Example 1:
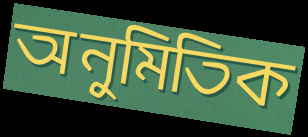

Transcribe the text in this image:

অনুমিতিক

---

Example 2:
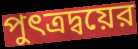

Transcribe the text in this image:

পুৎত্রদ্বয়ের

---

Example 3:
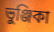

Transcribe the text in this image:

ভুঞ্জিকা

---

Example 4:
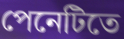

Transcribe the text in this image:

পেনেটিতে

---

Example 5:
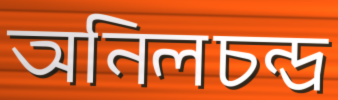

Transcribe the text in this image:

অনিলচন্দ্র